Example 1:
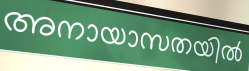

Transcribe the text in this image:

അനായാസതയിൽ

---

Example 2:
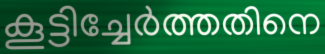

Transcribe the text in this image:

കൂട്ടിച്ചേർത്തതിനെ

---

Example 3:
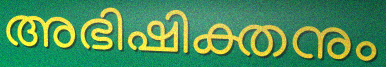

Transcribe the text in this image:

അഭിഷിക്തനും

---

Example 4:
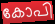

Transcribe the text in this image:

കോപി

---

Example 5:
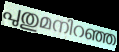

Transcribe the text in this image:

പുതുമനിറഞ്ഞ